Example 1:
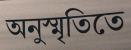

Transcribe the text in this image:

অনুস্মৃতিতে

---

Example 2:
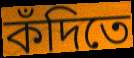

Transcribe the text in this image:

কঁদিতে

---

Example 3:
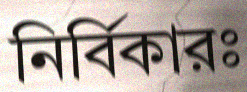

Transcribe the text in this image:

নির্বিকারঃ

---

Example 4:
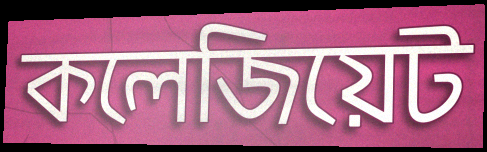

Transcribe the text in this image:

কলেজিয়েট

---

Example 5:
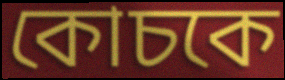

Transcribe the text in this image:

কোচকে